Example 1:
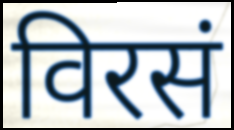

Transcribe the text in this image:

विरसं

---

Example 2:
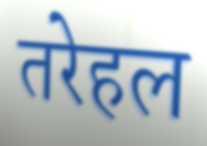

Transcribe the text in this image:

तरेहल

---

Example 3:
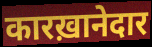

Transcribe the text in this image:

कारख़ानेदार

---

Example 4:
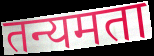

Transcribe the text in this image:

तन्यमता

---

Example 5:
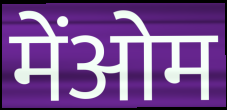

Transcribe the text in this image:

मेंओम